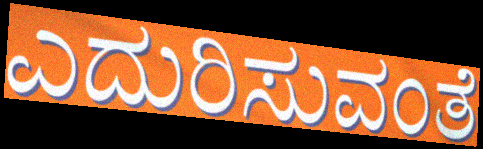
ಎದುರಿಸುವಂತೆ